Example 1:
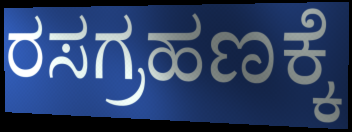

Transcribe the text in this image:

ರಸಗ್ರಹಣಕ್ಕೆ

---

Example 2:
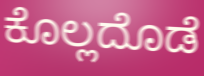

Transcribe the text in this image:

ಕೊಲ್ಲದೊಡೆ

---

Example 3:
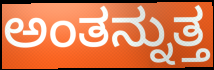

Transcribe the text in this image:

ಅಂತನ್ನುತ್ತ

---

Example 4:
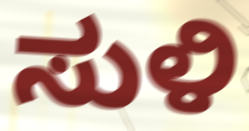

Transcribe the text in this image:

ಸುಳಿ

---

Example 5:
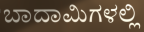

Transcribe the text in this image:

ಬಾದಾಮಿಗಳಲ್ಲಿ